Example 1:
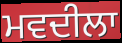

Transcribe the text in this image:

ਮਵਦੀਲਾ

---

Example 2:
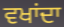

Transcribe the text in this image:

ਵਖਾਂਦਾ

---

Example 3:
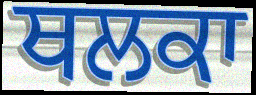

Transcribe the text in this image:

ਥਲਕਾ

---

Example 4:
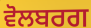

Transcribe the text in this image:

ਵੋਲਬਰਗ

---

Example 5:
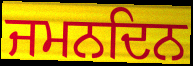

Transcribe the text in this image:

ਜਮਨਦਿਨ